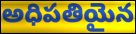
అధిపతియైన